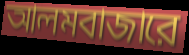
আলমবাজারে